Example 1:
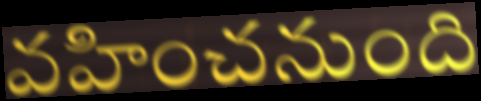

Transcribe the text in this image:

వహించనుంది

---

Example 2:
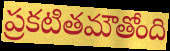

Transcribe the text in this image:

ప్రకటితమౌతోంది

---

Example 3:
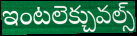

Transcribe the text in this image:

ఇంటలెక్చువల్స్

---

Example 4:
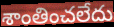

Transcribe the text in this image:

శాంతించలేదు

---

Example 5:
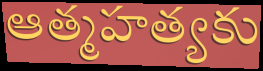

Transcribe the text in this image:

ఆత్మహత్యకు